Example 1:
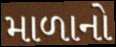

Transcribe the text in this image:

માળાનો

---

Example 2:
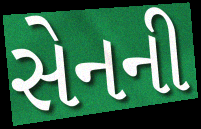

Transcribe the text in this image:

સેનની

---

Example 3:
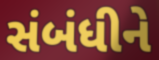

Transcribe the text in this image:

સંબંધીને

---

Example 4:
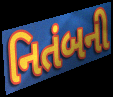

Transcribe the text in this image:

નિતંબની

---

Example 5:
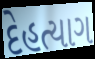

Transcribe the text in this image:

દેહત્યાગ